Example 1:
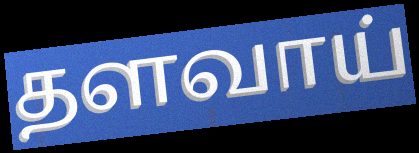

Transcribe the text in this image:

தளவாய்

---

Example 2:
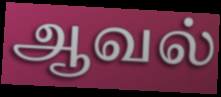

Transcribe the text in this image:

ஆவல்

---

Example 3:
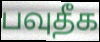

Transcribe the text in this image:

பவுதீக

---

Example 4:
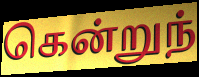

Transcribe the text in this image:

கென்றுந்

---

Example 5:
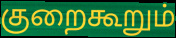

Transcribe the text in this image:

குறைகூறும்